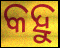
କହୁ